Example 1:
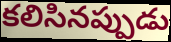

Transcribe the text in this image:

కలిసినప్పుడు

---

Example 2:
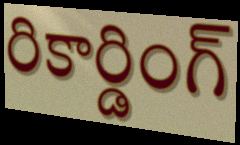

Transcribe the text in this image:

రికార్డింగ్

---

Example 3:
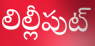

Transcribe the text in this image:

లిల్లీపుట్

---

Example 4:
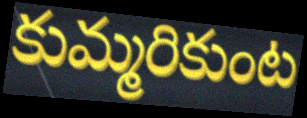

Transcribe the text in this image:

కుమ్మరికుంట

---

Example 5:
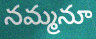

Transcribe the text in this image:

నమ్మనూ